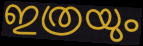
ഇത്രയും